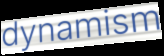
dynamism